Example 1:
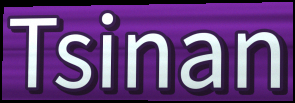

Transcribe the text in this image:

Tsinan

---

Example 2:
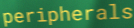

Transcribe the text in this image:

peripherals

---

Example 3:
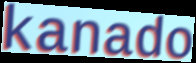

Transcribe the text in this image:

kanado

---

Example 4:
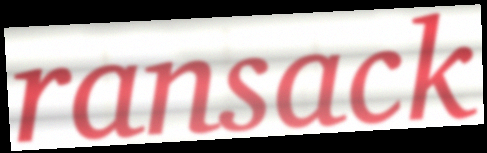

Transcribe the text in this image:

ransack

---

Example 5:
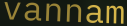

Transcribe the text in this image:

vannam